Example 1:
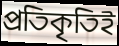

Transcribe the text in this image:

প্রতিকৃতিই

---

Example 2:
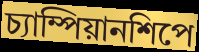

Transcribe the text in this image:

চ্যাম্পিয়ানশিপে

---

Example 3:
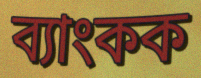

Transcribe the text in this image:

ব্যাংকক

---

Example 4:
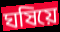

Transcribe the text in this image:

ঘষিয়ে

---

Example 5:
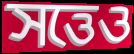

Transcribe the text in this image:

সত্তেও